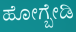
ಹೋಗ್ಬೇಡಿ